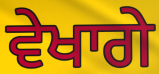
ਵੇਖਾਗੇ